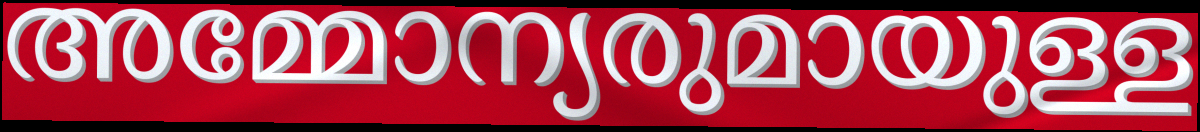
അമ്മോന്യരുമായുള്ള